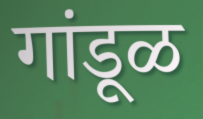
गांडूळ